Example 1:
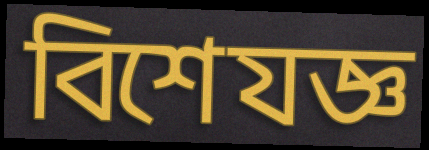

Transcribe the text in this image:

বিশেযজ্ঞ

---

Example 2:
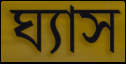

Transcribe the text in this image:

ঘ্যাস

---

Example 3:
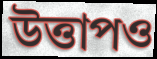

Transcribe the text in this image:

উত্তাপও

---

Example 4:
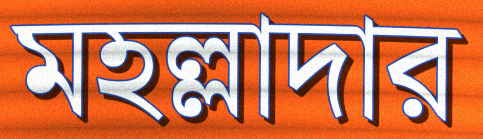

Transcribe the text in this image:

মহল্লাদার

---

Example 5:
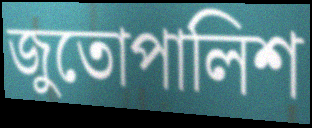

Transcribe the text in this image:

জুতোপালিশ